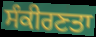
ਸੰਕੀਰਣਤਾ